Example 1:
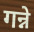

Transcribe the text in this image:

गन्ने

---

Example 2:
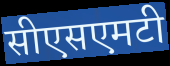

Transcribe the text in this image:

सीएसएमटी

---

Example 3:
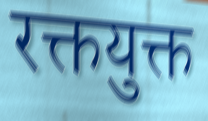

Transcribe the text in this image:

रक्तयुक्त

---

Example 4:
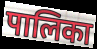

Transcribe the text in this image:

पालिका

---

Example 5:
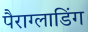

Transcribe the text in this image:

पैराग्लाडिंग